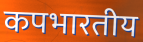
कपभारतीय